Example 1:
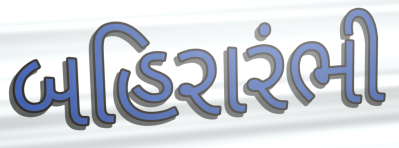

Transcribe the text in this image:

બહિરારંભી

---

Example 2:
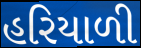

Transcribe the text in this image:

હરિયાળી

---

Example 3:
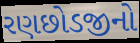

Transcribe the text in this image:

રણછોડજીનો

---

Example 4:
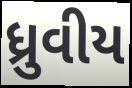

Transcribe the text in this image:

ધ્રુવીય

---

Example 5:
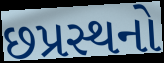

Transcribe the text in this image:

છપ્રસ્થનો